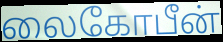
லைகோபீன்